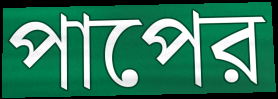
পাপের